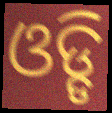
ଓଡ୍ଡି